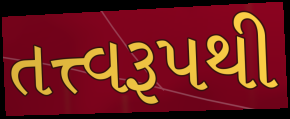
તત્ત્વરૂપથી